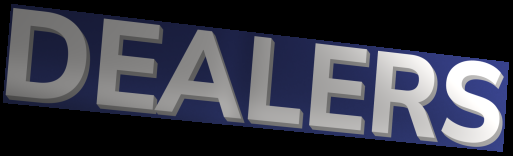
DEALERS